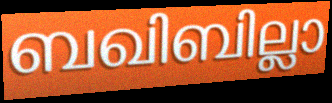
ബഖിബില്ലാ